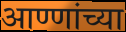
आण्णांच्या